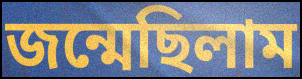
জন্মেছিলাম